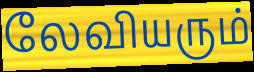
லேவியரும்